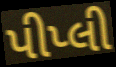
પીપ્લી